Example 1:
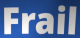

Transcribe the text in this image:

Frail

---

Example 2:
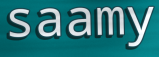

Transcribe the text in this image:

saamy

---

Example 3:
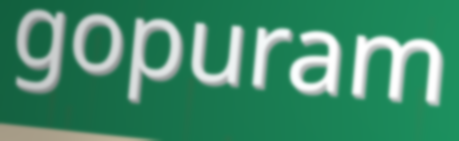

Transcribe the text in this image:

gopuram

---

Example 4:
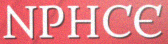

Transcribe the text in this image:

NPHCE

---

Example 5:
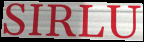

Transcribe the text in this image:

SIRLU